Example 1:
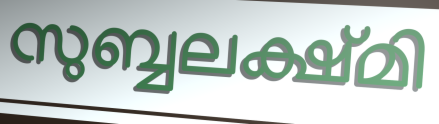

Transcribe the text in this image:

സുബ്ബലക്ഷ്മി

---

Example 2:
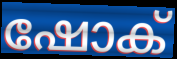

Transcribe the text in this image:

ഷോക്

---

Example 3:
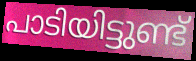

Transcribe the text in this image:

പാടിയിട്ടുണ്ട്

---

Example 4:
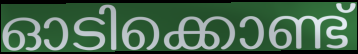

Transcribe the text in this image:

ഓടിക്കൊണ്ട്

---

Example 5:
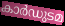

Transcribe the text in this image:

കാർഡുടമ